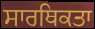
ਸਾਰਥਿਕਤਾ